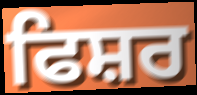
ਫਿਸ਼ਰ